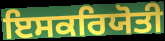
ਇਸਕਰਿਯੋਤੀ